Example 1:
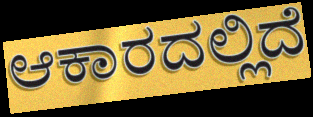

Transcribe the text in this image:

ಆಕಾರದಲ್ಲಿದೆ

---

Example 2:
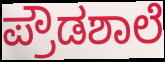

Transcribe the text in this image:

ಪ್ರೌಡಶಾಲೆ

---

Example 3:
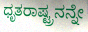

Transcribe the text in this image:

ಧೃತರಾಷ್ಟ್ರನನ್ನೇ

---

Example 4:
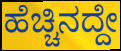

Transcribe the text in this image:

ಹೆಚ್ಚಿನದ್ದೇ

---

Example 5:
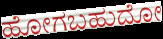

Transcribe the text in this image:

ಹೋಗಬಹುದೋ